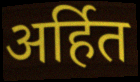
अर्हित